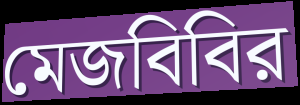
মেজবিবির